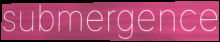
submergence